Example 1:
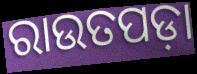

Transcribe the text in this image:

ରାଉତପଡ଼ା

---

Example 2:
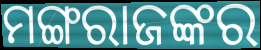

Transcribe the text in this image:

ମଙ୍ଗରାଜଙ୍କର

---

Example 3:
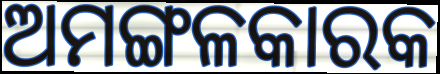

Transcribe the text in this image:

ଅମଙ୍ଗଳକାରକ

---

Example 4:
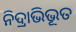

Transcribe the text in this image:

ନିଦ୍ରାଭିଭୂତ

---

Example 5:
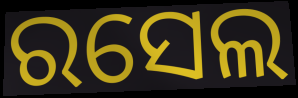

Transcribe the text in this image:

ରସେଲ